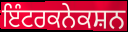
ਇੰਟਰਕਨੇਕਸ਼ਨ